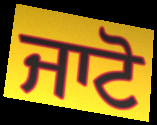
ਜਾਟੋ